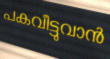
പകവീട്ടുവാൻ